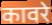
कावरे